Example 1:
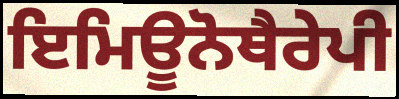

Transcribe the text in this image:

ਇਮਿਊਨੋਥੈਰੇਪੀ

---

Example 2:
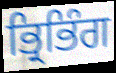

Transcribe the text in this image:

ਭ੍ਰਿਭਿੰਗ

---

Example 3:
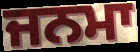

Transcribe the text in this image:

ਜਨਮਾ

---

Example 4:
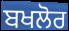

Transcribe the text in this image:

ਬਖਲੋਰ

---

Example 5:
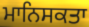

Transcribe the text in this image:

ਮਾਨਿਸਕਤਾ